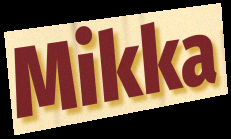
Mikka